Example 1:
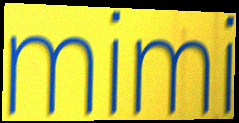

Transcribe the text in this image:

mimi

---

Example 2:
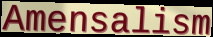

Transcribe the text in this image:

Amensalism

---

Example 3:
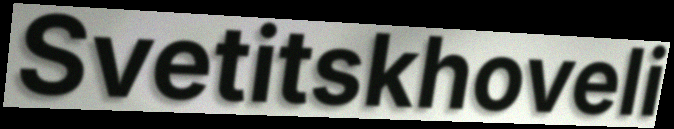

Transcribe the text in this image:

Svetitskhoveli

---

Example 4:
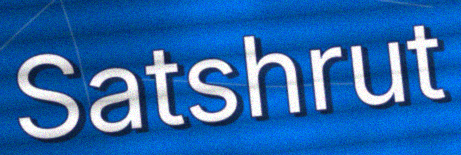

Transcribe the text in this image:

Satshrut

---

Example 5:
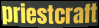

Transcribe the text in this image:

priestcraft